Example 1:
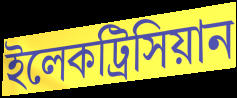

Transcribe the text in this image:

ইলেকট্রিসিয়ান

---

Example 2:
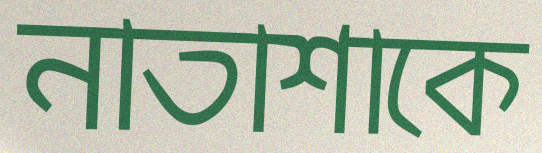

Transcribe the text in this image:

নাতাশাকে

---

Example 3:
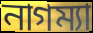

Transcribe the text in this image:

নাগম্যা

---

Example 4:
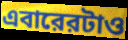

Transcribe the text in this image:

এবারেরটাও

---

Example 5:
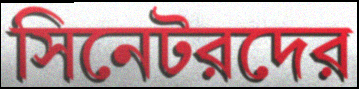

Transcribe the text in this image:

সিনেটরদের